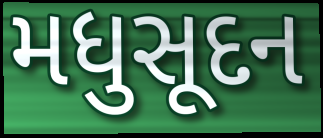
મધુસૂદન